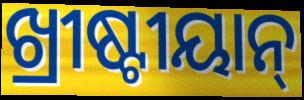
ଖ୍ରୀଷ୍ଟୀୟାନ୍